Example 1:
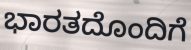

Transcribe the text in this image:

ಭಾರತದೊಂದಿಗೆ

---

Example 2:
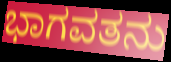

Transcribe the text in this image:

ಭಾಗವತನು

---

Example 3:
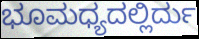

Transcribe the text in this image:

ಭೂಮಧ್ಯದಲ್ಲಿರ್ದು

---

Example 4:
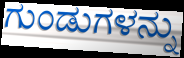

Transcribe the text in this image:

ಗುಂಡುಗಳನ್ನು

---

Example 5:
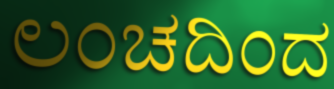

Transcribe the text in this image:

ಲಂಚದಿಂದ